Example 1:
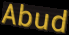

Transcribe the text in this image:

Abud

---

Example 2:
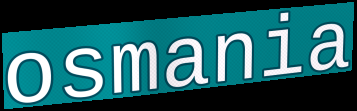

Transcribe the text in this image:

osmania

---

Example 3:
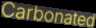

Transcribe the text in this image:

Carbonated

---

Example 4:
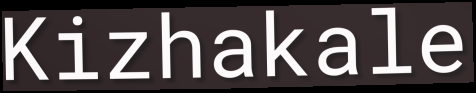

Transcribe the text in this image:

Kizhakale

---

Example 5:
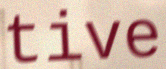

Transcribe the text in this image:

tive